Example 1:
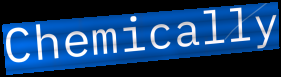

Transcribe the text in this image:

Chemically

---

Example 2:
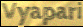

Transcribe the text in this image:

Vyapari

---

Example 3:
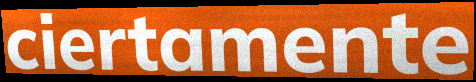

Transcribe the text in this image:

ciertamente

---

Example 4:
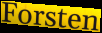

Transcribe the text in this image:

Forsten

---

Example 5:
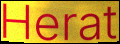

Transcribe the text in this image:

Herat